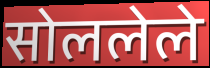
सोललेले